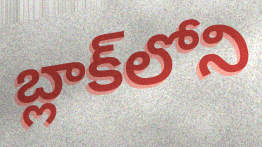
బ్లాక్‌లోని